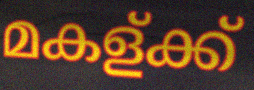
മകള്ക്ക്